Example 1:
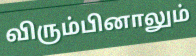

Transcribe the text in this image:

விரும்பினாலும்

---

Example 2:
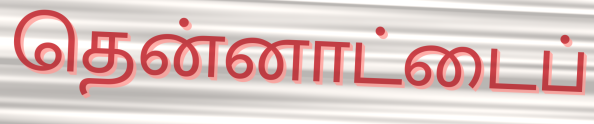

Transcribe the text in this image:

தென்னாட்டைப்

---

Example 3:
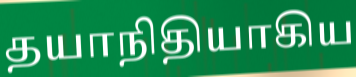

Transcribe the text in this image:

தயாநிதியாகிய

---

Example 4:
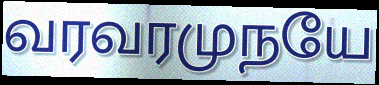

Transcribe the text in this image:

வரவரமுநயே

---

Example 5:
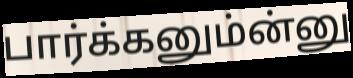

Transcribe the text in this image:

பார்க்கனும்ன்னு